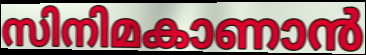
സിനിമകാണാൻ